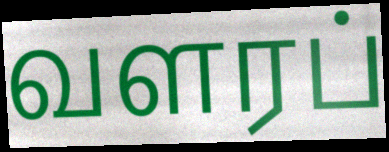
வளரப்